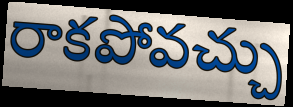
రాకపోవచ్చు